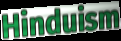
Hinduism